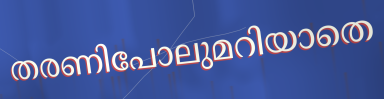
തരണിപോലുമറിയാതെ